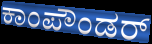
ಕಾಂಪೌಂಡರ್